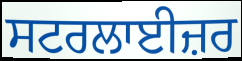
ਸਟਰਲਾਈਜ਼ਰ